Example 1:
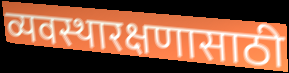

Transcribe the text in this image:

व्यवस्थारक्षणासाठी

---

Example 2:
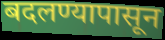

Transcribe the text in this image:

बदलण्यापासून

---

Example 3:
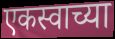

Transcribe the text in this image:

एकस्वाच्या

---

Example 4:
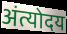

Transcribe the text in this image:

अंत्योदय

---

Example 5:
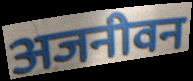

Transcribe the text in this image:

अजनीवन